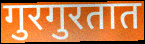
गुरगुरतात